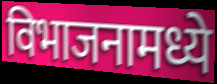
विभाजनामध्ये